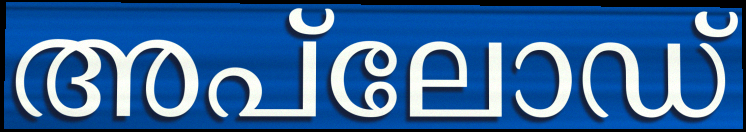
അപ്‌ലോഡ്